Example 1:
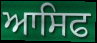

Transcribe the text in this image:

ਆਸਿਫ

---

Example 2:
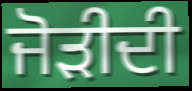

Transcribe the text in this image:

ਜੋੜੀਦੀ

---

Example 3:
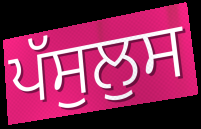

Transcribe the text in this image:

ਪੱਸੁਲੁਸ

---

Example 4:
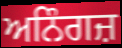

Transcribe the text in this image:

ਅਨਿੰਗਜ਼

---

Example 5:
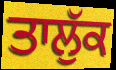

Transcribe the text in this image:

ਤਾਲੁੱਕ